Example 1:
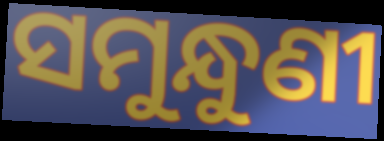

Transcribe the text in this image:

ସମୁନ୍ଧୁଣୀ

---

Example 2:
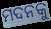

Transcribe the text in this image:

ମଦନକୁ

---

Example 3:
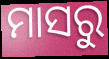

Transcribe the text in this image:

ମାସରୁ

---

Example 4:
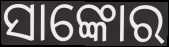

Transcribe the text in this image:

ସାଙ୍କୋର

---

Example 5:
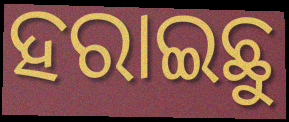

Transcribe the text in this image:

ହରାଇଛୁ